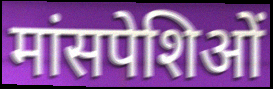
मांसपेशिओं